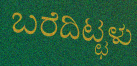
ಬರೆದಿಟ್ಟಳು